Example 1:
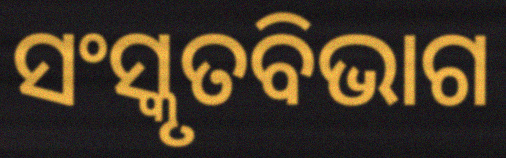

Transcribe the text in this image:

ସଂସ୍କୃତବିଭାଗ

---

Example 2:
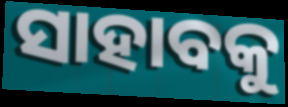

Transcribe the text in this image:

ସାହାବକୁ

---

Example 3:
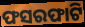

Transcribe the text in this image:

ଫସରଫାଟି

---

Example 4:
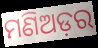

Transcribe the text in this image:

ମଣିଅଡ଼ର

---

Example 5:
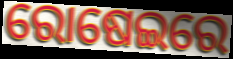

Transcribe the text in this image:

ରୋଷେଇରେ